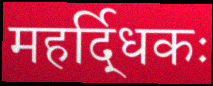
महर्द्धिकः